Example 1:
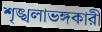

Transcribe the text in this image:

শৃঙ্খলাভঙ্গকারী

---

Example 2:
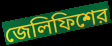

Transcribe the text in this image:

জেলিফিশের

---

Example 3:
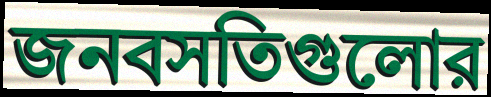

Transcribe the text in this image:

জনবসতিগুলোর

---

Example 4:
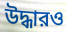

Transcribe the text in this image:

উদ্ধারও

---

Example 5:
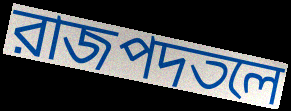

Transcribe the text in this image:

রাজপদতলে